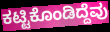
ಕಟ್ಟಿಕೊಂಡಿದ್ದೆವು